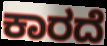
ಕಾರದೆ